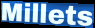
Millets